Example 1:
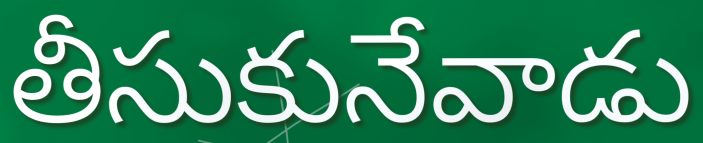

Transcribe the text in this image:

తీసుకునేవాడు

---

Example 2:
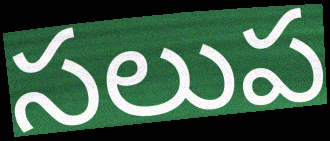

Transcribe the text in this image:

సలుప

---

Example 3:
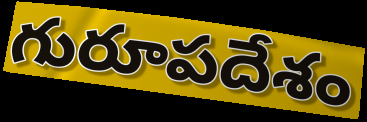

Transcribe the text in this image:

గురూపదేశం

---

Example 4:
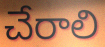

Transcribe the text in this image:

చేరాలి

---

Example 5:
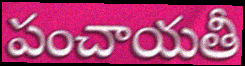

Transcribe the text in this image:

పంచాయతీ